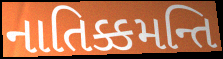
નાતિક્કમન્તિ